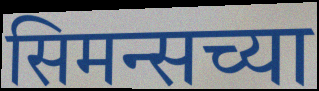
सिमन्सच्या